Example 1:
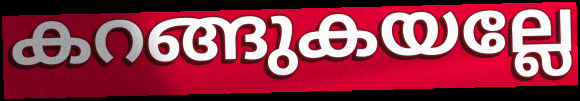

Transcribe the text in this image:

കറങ്ങുകയല്ലേ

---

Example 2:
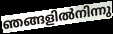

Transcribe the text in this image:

ഞങ്ങളിൽനിന്നു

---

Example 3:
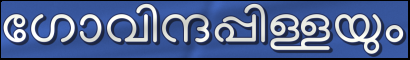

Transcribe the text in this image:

ഗോവിന്ദപ്പിള്ളയും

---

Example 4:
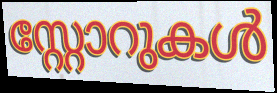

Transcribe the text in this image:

സ്റ്റോറുകൾ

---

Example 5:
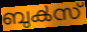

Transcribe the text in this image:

ബുൿസ്